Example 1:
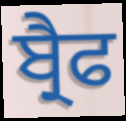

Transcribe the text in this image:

ਬ੍ਰੈਫ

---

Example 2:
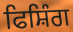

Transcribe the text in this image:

ਫਿਸ਼ਿੰਗ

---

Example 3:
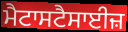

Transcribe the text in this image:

ਮੈਟਾਸਟੈਸਾਈਜ਼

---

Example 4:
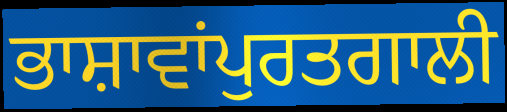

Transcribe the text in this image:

ਭਾਸ਼ਾਵਾਂਪੁਰਤਗਾਲੀ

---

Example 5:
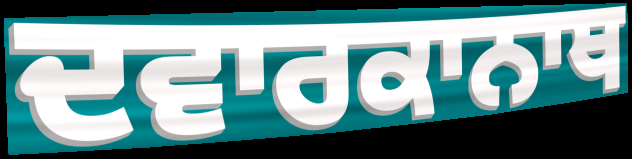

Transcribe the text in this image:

ਦਵਾਰਕਾਨਾਥ